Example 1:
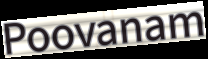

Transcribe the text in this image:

Poovanam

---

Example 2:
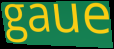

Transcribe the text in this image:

gaue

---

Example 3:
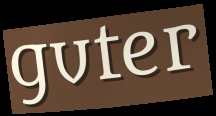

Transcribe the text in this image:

guter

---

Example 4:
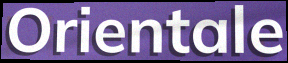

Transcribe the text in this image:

Orientale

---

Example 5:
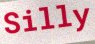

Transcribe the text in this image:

Silly